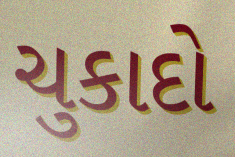
ચુકાદો